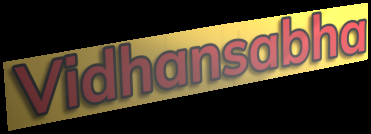
Vidhansabha